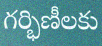
గర్భిణీలకు